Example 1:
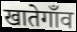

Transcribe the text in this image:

खातेगाँव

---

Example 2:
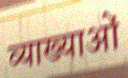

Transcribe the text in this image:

व्याख्याओं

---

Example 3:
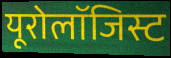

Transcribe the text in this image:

यूरोलॉजिस्ट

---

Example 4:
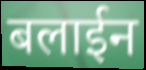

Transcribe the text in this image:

बलाईन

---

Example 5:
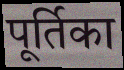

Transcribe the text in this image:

पूर्तिका